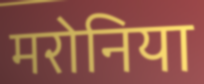
मरोनिया